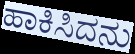
ಹಾಕಿಸಿದನು